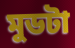
মুডটা